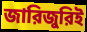
জারিজুরিই